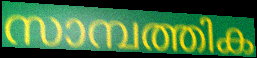
സാമ്പത്തിക